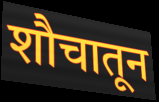
शौचातून